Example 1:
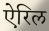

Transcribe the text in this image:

ऐरिल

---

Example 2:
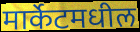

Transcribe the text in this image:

मार्केटमधील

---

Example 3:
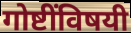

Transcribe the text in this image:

गोष्टींविषयी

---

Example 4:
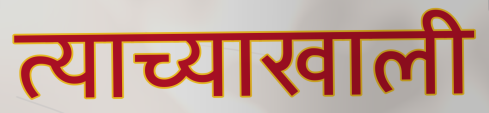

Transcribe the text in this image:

त्याच्याखाली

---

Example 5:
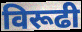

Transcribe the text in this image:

विरूढी